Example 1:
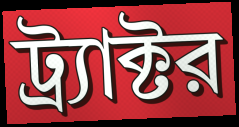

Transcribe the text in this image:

ট্র্যাক্টর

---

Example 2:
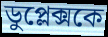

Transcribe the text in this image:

ডুপ্লেক্সকে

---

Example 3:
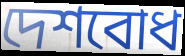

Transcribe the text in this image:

দেশবোধ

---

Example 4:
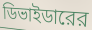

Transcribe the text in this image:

ডিভাইডারের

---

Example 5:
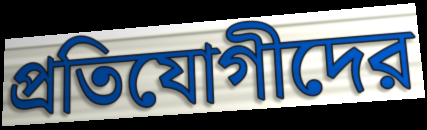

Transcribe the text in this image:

প্রতিযোগীদের